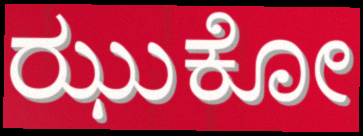
ಝುಕೋ